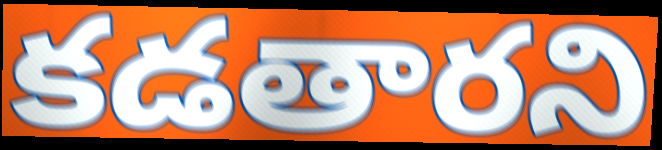
కడతారని